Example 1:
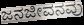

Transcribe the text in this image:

ಜನಜೀವನವು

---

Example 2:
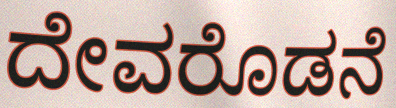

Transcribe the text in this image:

ದೇವರೊಡನೆ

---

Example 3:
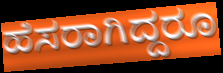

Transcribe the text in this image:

ಹೆಸರಾಗಿದ್ದರೂ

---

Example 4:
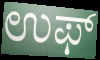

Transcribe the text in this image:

ಉಫ್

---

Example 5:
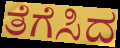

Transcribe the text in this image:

ತೆಗೆಸಿದ